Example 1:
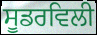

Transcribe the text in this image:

ਸੂਡਰਵਿਲੀ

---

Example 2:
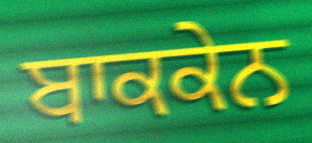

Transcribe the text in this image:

ਬਾਕਕੇਨ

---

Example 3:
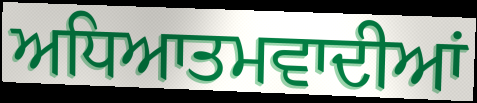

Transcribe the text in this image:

ਅਧਿਆਤਮਵਾਦੀਆਂ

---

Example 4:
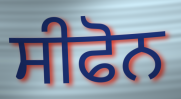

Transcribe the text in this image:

ਸੀਫੋਨ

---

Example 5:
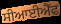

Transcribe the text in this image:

ਸੀਆਈਐੱਫ